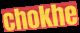
chokhe